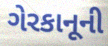
ગેરકાનૂની